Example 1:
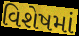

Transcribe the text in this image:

વિશેષમાં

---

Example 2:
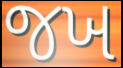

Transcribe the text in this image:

જખ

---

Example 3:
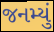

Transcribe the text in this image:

જનમ્યું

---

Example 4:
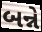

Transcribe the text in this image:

બન્ને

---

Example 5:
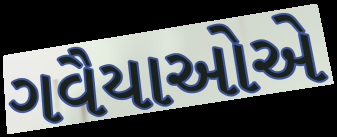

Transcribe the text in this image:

ગવૈયાઓએ